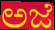
ಅಜೆ